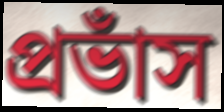
প্রভাঁস